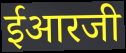
ईआरजी